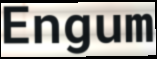
Engum